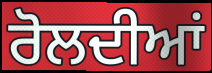
ਰੋਲਦੀਆਂ